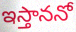
ఇస్తాననో